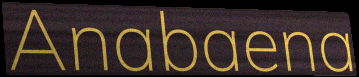
Anabaena